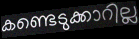
കണ്ടെടുക്കാറില്ല